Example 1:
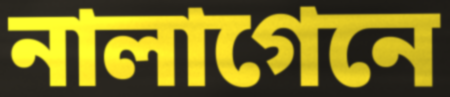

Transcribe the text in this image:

নালাগেনে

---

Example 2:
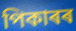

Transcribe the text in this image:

পিকাৰৰ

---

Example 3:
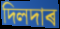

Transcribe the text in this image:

দিলদাৰ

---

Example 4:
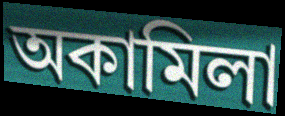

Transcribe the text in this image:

অকামিলা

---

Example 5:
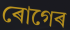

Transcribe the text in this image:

ৰোগেৰ